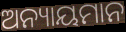
ଅନ୍ୟାୟମାନ